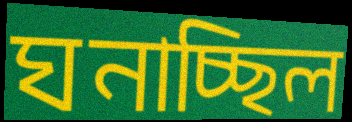
ঘনাচ্ছিল